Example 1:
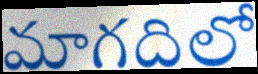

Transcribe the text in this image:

మాగదిలో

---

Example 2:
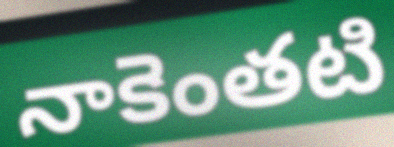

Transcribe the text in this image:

నాకెంతటి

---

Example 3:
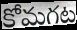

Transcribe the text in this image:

కోమగట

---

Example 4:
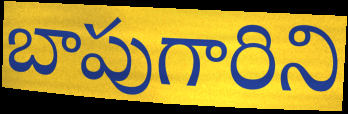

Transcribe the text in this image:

బాపుగారిని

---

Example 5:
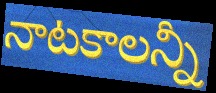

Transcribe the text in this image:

నాటకాలన్నీ